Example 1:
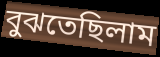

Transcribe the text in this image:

বুঝতেছিলাম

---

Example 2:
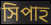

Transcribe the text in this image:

সিপাহ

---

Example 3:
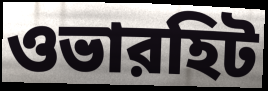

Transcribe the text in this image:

ওভারহিট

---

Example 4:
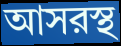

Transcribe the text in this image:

আসরস্থ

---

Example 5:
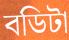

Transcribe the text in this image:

বডিটা